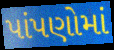
પાંપણોમાં